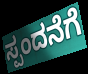
ಸ್ಪಂದನೆಗೆ